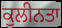
ਕੁਲੀਨਤਾ